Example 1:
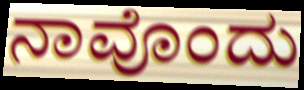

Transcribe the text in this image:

ನಾವೊಂದು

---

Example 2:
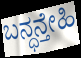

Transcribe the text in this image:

ಬನ್ಧನ್ತೇಹಿ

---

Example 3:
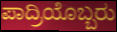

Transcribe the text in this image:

ಪಾದ್ರಿಯೊಬ್ಬರು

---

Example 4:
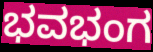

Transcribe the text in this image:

ಭವಭಂಗ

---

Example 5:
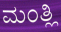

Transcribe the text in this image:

ಮಂತ್ಲಿ